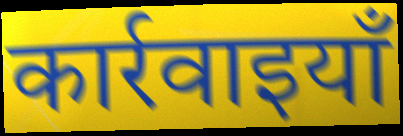
कार्रवाइयाँ